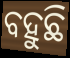
ବହୁଛି